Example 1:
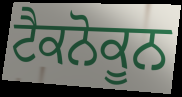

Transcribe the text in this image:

ਟੈਕਨੋਕੂਨ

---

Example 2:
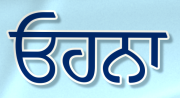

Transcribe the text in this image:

ਓਹਨਾ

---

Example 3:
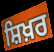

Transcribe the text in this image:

ਸ਼ਿਖ਼ਰ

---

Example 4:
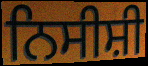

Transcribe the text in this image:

ਨਿਸੀਸ਼ੀ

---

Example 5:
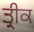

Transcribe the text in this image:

ਤ੍ਰੀਕ